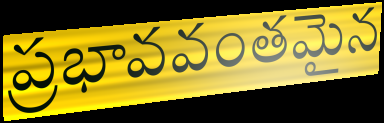
ప్రభావవంతమైన